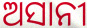
ଅସାନୀ